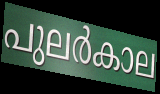
പുലർകാല